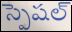
స్పెషల్